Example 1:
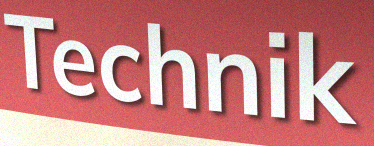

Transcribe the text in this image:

Technik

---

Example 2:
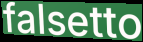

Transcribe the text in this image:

falsetto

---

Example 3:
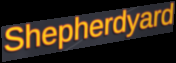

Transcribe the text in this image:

Shepherdyard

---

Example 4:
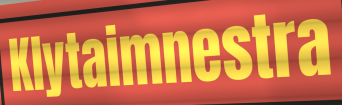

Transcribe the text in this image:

Klytaimnestra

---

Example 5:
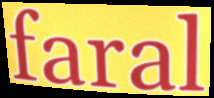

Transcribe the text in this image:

faral